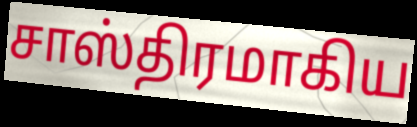
சாஸ்திரமாகிய